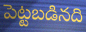
పెట్టబడినది